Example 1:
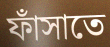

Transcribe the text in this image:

ফাঁসাতে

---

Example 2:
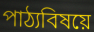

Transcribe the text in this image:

পাঠ্যবিষয়ে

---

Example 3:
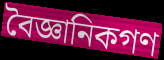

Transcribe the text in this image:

বৈজ্ঞানিকগণ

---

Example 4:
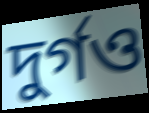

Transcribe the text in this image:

দুর্গও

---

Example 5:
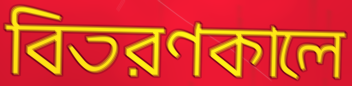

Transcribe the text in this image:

বিতরণকালে